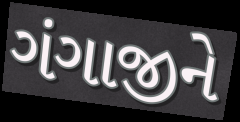
ગંગાજીને